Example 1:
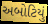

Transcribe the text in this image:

અબોટિયું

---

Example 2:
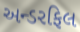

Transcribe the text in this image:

અન્ડરફિલ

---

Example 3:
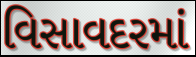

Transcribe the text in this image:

વિસાવદરમાં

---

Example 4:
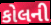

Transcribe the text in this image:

કોલની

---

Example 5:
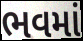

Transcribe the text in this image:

ભવમાં